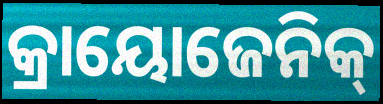
କ୍ରାୟୋଜେନିକ୍